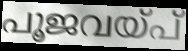
പൂജവയ്പ്